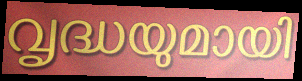
വൃദ്ധയുമായി